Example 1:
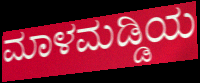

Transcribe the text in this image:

ಮಾಳಮಡ್ಡಿಯ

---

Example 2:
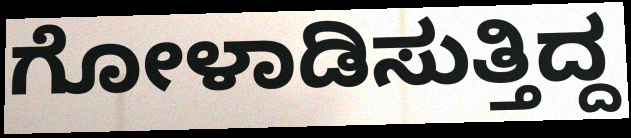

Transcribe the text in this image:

ಗೋಳಾಡಿಸುತ್ತಿದ್ದ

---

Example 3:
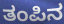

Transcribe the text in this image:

ತಂಪಿನ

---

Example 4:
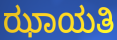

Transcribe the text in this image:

ಝಾಯತಿ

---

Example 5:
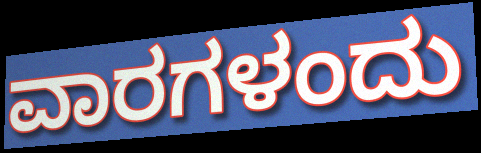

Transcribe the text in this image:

ವಾರಗಳಂದು